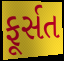
ફૂર્સત